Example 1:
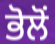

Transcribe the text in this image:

ਭੋਲੋਂ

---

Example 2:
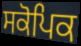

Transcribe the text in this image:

ਸਕੋਪਿਕ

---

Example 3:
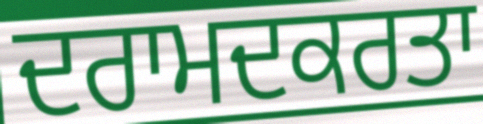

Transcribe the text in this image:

ਦਰਾਮਦਕਰਤਾ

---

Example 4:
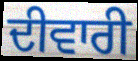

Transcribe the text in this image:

ਦੀਵਾਰੀ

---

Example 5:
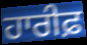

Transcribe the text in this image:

ਹਾਰੀਫ਼